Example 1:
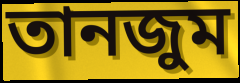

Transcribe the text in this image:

তানজুম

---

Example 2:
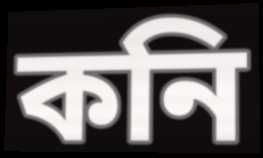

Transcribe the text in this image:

কনি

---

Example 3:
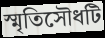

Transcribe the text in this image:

স্মৃতিসৌধটি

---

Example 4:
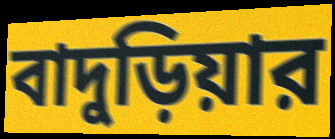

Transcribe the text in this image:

বাদুড়িয়ার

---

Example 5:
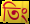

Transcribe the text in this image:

তিং